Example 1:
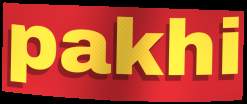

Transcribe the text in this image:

pakhi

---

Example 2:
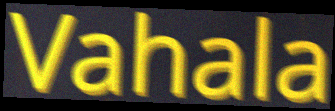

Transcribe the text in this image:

Vahala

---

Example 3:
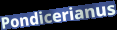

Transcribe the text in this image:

Pondicerianus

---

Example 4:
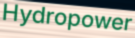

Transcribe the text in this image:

Hydropower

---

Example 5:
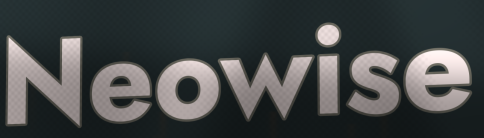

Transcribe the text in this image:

Neowise